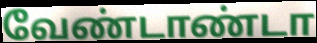
வேண்டாண்டா